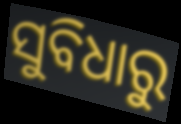
ସୁବିଧାରୁ